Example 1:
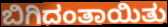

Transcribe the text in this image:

ಬಿಗಿದಂತಾಯಿತು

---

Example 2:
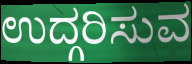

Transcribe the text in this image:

ಉದ್ಗರಿಸುವ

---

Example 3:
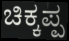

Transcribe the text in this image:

ಚಿಕ್ಕಪ್ಪ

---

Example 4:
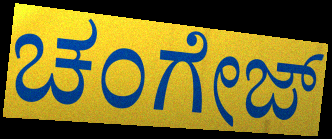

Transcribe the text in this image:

ಚಂಗೇಜ್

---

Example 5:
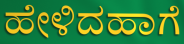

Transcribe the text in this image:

ಹೇಳಿದಹಾಗೆ